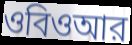
ওবিওআর